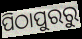
ପିଠାପୁରରୁ